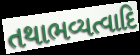
તથાભવ્યત્વાદિ